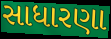
સાધારણા